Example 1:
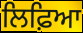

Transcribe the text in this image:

ਲਿਫ਼ਿਆ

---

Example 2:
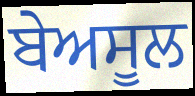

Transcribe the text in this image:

ਬੇਅਸੂਲ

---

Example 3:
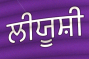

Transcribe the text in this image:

ਲੀਯੂਸ਼ੀ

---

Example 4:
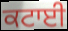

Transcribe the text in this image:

ਕਟਾਈ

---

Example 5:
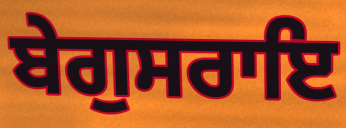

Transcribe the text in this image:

ਬੇਗੁਸਰਾਇ